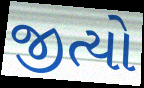
જીત્યો